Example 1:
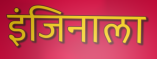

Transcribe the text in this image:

इंजिनाला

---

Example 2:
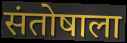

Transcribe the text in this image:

संतोषाला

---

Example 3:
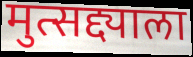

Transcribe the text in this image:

मुत्सद्द्याला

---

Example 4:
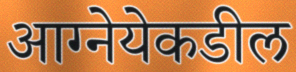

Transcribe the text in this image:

आग्नेयेकडील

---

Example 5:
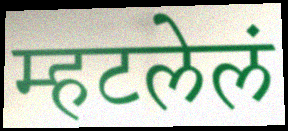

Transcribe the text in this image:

म्हटलेलं